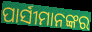
ପାର୍ସୀମାନଙ୍କର